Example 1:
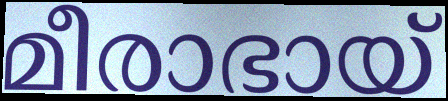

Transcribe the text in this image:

മീരാഭായ്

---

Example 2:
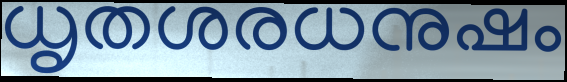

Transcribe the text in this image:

ധൃതശരധനുഷം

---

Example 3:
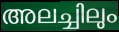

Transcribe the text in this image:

അലച്ചിലും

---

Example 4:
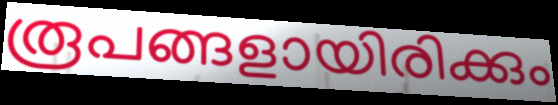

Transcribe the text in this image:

രൂപങ്ങളായിരിക്കും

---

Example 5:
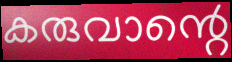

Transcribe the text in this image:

കരുവാന്റെ